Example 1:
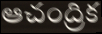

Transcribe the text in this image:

ఆచంద్రిక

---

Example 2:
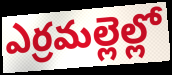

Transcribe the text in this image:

ఎర్రమల్లెల్లో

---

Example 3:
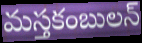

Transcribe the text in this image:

మస్తకంబులన్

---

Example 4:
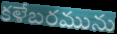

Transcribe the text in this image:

కళేబరమును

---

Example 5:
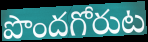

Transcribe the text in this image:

పొందగోరుట